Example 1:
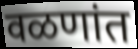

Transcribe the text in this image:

वळणांत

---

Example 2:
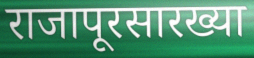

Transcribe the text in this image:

राजापूरसारख्या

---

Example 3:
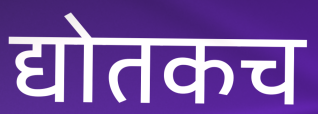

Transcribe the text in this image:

द्योतकच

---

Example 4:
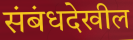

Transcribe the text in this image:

संबंधदेखील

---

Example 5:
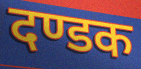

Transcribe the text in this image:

दण्डक